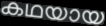
കഥയായ